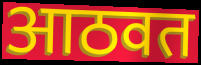
आठवत